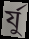
র্যু